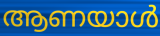
ആണയാൾ